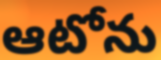
ఆటోను